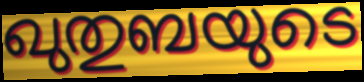
ഖുതുബയുടെ